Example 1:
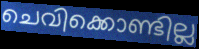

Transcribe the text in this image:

ചെവിക്കൊണ്ടില്ല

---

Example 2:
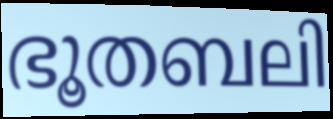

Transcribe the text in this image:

ഭൂതബലി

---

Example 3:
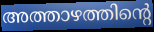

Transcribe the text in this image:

അത്താഴത്തിന്റെ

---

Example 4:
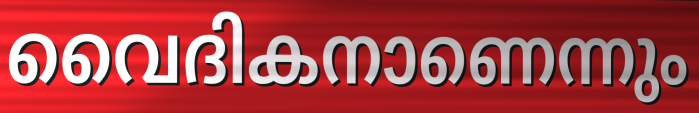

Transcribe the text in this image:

വൈദികനാണെന്നും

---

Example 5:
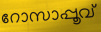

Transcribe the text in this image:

റോസാപ്പൂവ്